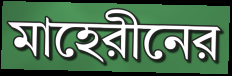
মাহেরীনের